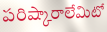
పరిష్కారాలేమిటో